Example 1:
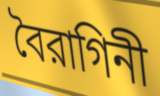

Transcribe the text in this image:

বৈরাগিনী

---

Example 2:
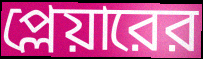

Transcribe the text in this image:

প্লেয়ারের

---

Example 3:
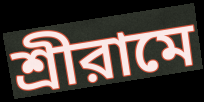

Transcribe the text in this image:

শ্রীরামে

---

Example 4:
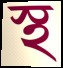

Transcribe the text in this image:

স্থ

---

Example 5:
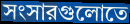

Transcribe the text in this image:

সংসারগুলোতে